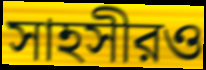
সাহসীরও